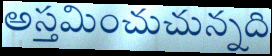
అస్తమించుచున్నది